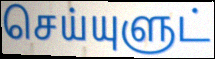
செய்யுளுட்